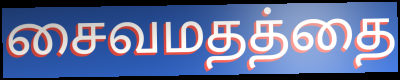
சைவமதத்தை